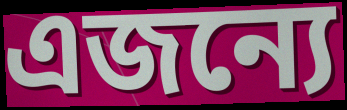
এজন্যে